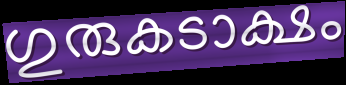
ഗുരുകടാക്ഷം